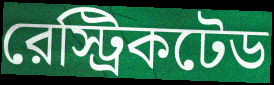
রেস্ট্রিকটেড